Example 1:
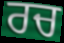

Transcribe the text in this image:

ਰਚ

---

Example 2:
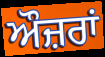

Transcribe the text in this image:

ਔਜ਼ਰਾਂ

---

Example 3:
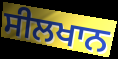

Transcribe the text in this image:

ਸੀਲਖਾਨ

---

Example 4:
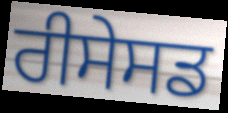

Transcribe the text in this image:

ਰੀਸੇਸਡ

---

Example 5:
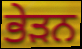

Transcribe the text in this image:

ਭੇੜਨ